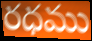
రధము